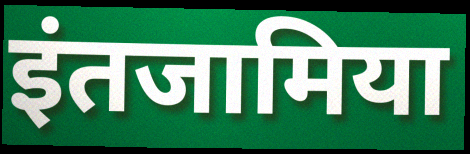
इंतजामिया